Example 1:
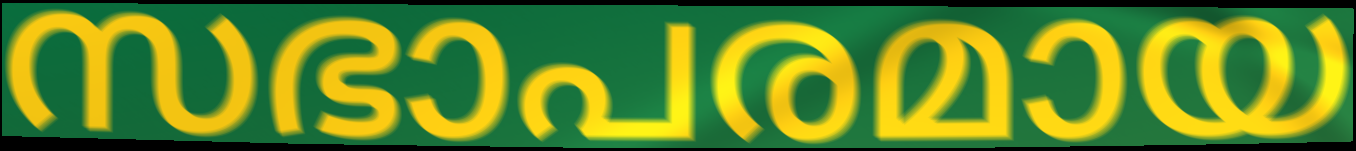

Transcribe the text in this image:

സഭാപരമായ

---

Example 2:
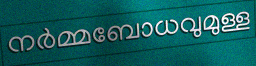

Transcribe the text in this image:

നർമ്മബോധവുമുള്ള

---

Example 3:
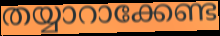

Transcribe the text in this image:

തയ്യാറാക്കേണ്ട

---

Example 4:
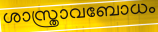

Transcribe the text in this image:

ശാസ്ത്രാവബോധം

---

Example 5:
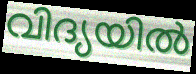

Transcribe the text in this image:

വിദ്യയിൽ